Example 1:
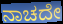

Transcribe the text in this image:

ನಾಚದೇ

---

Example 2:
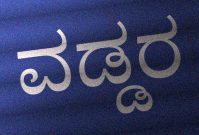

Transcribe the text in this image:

ವಡ್ಡರ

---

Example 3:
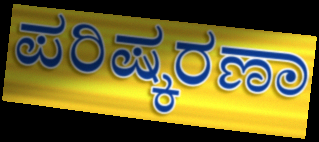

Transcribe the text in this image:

ಪರಿಷ್ಕರಣಾ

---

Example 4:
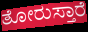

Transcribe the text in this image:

ತೋರುಸ್ತಾರೆ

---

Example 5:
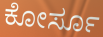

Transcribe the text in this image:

ಕೋರ್ಸೂ